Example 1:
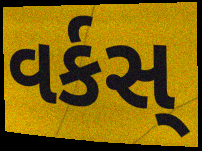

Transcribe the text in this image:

વર્કસ્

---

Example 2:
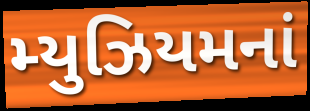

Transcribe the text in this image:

મ્યુઝિયમનાં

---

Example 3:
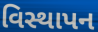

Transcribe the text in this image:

વિસ્થાપન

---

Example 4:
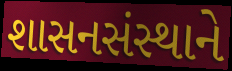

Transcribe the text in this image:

શાસનસંસ્થાને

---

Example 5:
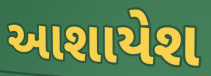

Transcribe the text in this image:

આશાયેશ